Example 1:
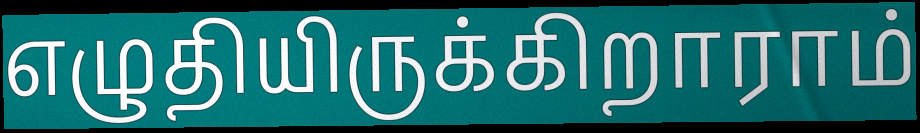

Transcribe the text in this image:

எழுதியிருக்கிறாராம்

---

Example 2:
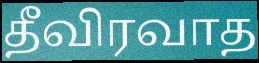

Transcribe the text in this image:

தீவிரவாத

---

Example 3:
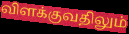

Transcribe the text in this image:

விளக்குவதிலும்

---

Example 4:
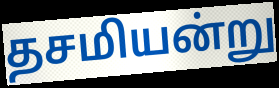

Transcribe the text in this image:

தசமியன்று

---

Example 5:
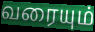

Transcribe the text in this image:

வரையும்